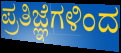
ಪ್ರತಿಜ್ಞೆಗಳಿಂದ